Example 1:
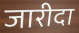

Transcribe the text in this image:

जारीदा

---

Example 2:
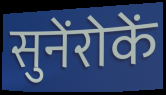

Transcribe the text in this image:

सुनेंरोकें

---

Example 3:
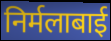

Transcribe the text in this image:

निर्मलाबाई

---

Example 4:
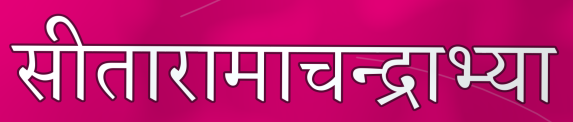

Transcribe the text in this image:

सीतारामाचन्द्राभ्या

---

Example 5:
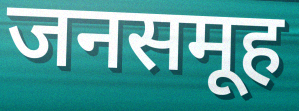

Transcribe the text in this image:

जनसमूह